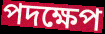
পদক্ষেপ